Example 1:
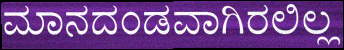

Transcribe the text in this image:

ಮಾನದಂಡವಾಗಿರಲಿಲ್ಲ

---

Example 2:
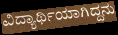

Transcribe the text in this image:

ವಿದ್ಯಾರ್ಥಿಯಾಗಿದ್ದನು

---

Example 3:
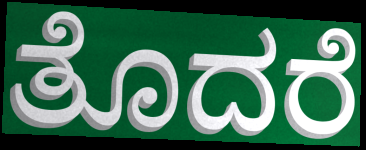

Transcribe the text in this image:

ತೊದರೆ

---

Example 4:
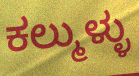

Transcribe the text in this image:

ಕಲ್ಮುಳ್ಳು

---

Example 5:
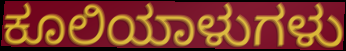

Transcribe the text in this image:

ಕೂಲಿಯಾಳುಗಳು